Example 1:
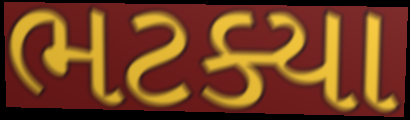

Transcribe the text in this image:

ભટક્યા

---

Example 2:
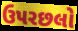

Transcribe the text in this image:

ઉપરછલો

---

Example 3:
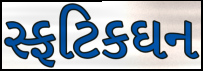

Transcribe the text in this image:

સ્ફટિકઘન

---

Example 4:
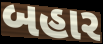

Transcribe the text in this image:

બહાર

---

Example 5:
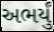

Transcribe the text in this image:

અભર્યું